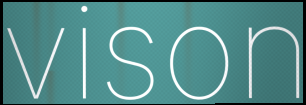
vison